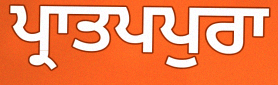
ਪ੍ਰਾਤਪਪੁਰਾ